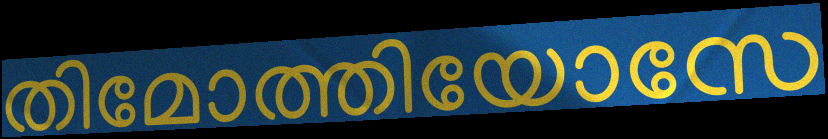
തിമോത്തിയോസേ